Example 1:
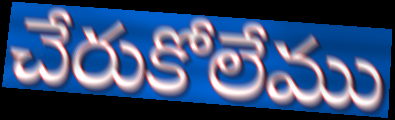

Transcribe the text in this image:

చేరుకోలేము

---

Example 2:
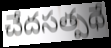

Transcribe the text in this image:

చేదసత్పథే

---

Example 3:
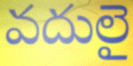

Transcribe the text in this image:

వదులై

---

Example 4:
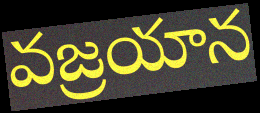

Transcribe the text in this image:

వజ్రయాన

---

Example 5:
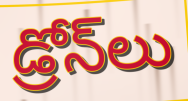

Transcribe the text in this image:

డ్రోన్‌లు